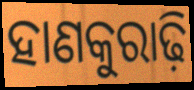
ହାଣକୁରାଢ଼ି